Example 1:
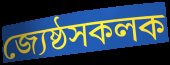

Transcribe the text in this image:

জ্যেষ্ঠসকলক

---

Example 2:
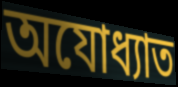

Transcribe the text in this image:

অযোধ্যাত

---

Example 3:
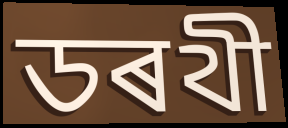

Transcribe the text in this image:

ডৰথী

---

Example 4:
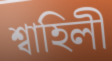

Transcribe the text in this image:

শ্বাহিলী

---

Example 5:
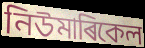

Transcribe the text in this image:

নিউমাৰিকেল